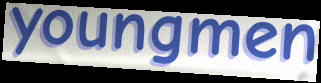
youngmen